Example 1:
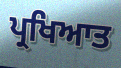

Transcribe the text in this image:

ਪ੍ਰਖਿਆਤ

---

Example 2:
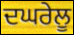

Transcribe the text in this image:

ਦਘਰੇਲੂ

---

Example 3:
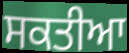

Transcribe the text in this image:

ਸਕਤੀਆ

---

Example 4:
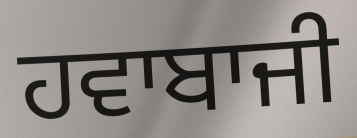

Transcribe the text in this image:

ਹਵਾਬਾਜੀ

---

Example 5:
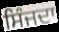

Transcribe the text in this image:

ਸਿੰਜਦਾ